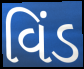
વિંડ